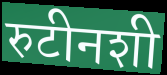
रुटीनशी